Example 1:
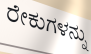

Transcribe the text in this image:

ರೇಕುಗಳನ್ನು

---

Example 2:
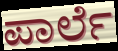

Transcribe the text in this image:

ಪಾರ್ಲೆ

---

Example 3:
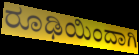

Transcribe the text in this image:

ರೂಢಿಯಿಂದಾಗಿ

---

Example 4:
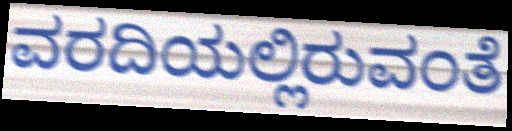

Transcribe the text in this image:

ವರದಿಯಲ್ಲಿರುವಂತೆ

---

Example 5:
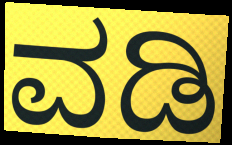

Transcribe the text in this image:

ವಡಿ